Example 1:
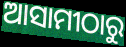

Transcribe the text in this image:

ଆସାମୀଠାରୁ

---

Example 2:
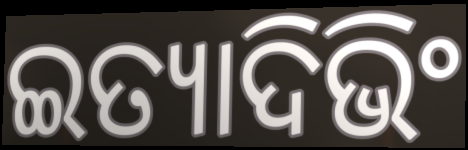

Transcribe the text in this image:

ଇତ୍ୟାଦିଭିଂ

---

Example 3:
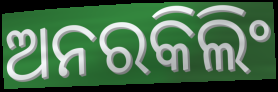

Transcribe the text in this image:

ଅନରକିଲିଂ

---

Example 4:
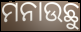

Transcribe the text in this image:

ମନାଉଛୁ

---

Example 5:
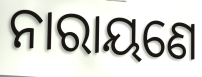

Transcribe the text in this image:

ନାରାୟଣେ